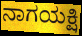
ನಾಗಯಕ್ಷಿ